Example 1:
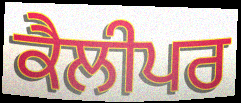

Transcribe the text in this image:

ਕੈਲੀਪਰ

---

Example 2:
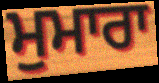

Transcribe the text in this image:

ਮੁਮਾਰਾ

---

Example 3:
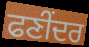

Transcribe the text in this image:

ਫਣੀਂਦਰ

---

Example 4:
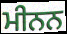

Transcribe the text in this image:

ਮੀਨਨ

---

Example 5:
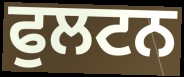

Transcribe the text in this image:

ਫੁਲਟਨ